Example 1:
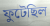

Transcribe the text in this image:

ফুটেছিল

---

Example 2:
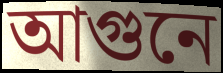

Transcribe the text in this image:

আগুনে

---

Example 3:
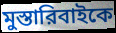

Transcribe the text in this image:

মুস্তারিবাইকে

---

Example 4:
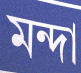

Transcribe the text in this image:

মন্দা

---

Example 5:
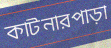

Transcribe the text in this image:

কাটনারপাড়া